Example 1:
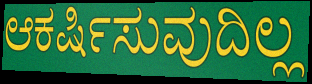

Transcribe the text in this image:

ಆಕರ್ಷಿಸುವುದಿಲ್ಲ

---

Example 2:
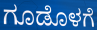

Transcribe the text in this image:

ಗೂಡೊಳಗೆ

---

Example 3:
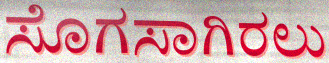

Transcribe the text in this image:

ಸೊಗಸಾಗಿರಲು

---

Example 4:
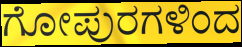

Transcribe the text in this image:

ಗೋಪುರಗಳಿಂದ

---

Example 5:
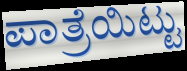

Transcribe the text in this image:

ಪಾತ್ರೆಯಿಟ್ಟು